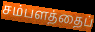
சம்பளத்தைப்